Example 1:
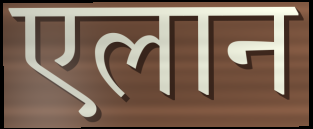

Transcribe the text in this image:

एलान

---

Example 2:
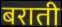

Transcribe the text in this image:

बराती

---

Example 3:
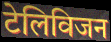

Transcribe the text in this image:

टेलिविजन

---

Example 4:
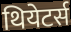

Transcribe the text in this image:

थियेटर्स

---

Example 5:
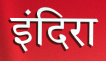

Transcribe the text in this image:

इंदिरा